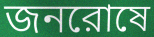
জনরোষে